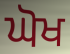
ਘੋਖ